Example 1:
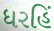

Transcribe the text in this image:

ધરહિં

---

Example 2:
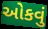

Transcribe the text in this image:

ઓકવું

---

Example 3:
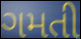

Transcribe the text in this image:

ગમતી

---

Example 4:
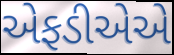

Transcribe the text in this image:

એફડીએએ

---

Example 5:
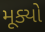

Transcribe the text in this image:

મૂક્યો